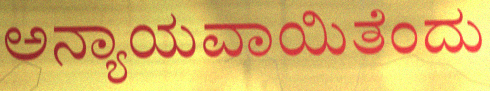
ಅನ್ಯಾಯವಾಯಿತೆಂದು